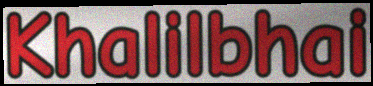
Khalilbhai